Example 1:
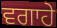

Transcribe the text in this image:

ਵਗਾਹੇ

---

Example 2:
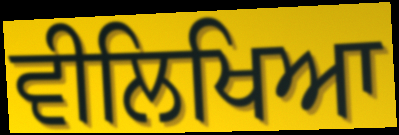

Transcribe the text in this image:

ਵੀਲਿਖਿਆ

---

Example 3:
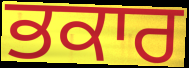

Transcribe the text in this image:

ਭਕਾਰ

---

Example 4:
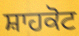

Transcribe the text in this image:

ਸ਼ਾਹਕੋਟ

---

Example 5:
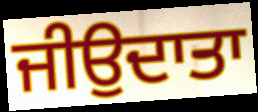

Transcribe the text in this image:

ਜੀਉਦਾਤਾ